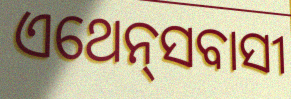
ଏଥେନ୍‌ସବାସୀ